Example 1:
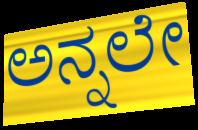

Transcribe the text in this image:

ಅನ್ನಲೇ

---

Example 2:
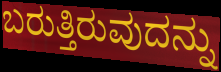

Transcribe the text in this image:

ಬರುತ್ತಿರುವುದನ್ನು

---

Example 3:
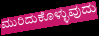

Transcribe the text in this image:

ಮುರಿದುಕೊಳ್ಳುವುದು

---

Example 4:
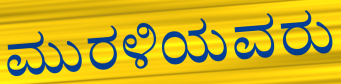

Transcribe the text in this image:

ಮುರಳಿಯವರು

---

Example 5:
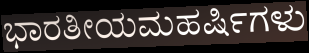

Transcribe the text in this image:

ಭಾರತೀಯಮಹರ್ಷಿಗಳು